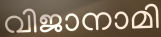
വിജാനാമി